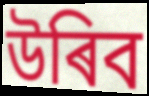
উৰিব